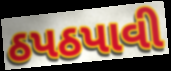
ઠપઠપાવી